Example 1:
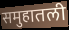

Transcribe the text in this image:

समुहातली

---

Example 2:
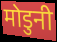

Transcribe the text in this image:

मोडुनी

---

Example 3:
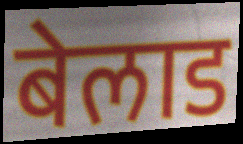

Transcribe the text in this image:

बेलाड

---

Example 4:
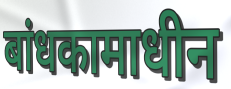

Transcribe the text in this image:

बांधकामाधीन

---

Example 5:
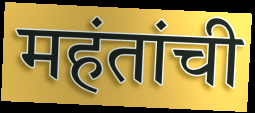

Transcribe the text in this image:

महंतांची